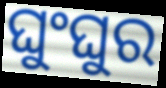
ଘୁଂଘୁର